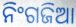
ନିଂଗଜିଆ